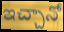
ఇచ్చానో